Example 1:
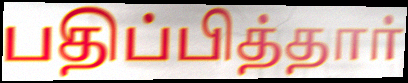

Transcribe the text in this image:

பதிப்பித்தார்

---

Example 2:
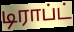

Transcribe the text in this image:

டிராப்ட்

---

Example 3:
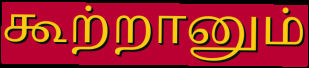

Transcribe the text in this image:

கூற்றானும்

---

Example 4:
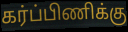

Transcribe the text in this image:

கர்ப்பிணிக்கு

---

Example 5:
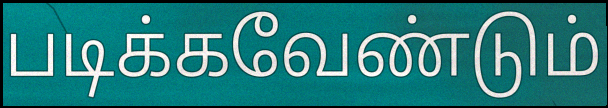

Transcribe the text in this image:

படிக்கவேண்டும்